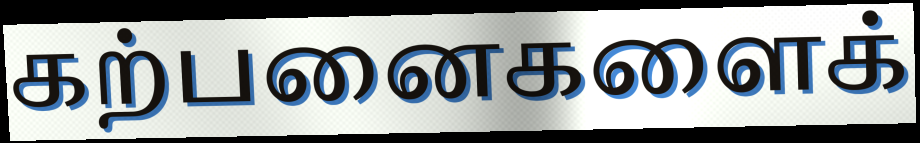
கற்பனைகளைக்